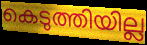
കെടുത്തിയില്ല